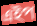
এইপ